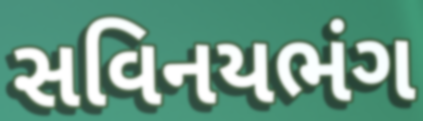
સવિનયભંગ